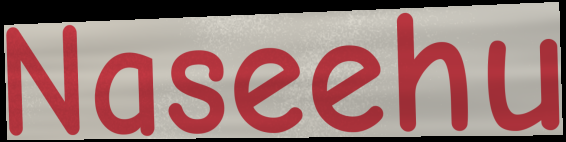
Naseehu